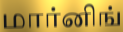
மார்னிங்